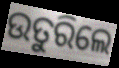
ଉତୁରିଲେ